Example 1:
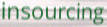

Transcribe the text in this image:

insourcing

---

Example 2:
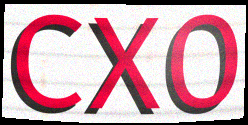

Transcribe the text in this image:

CXO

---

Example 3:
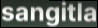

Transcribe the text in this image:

sangitla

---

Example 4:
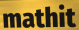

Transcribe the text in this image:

mathit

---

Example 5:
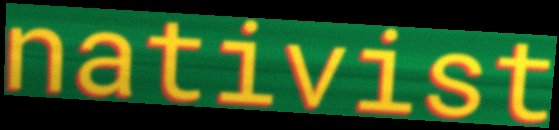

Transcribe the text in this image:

nativist